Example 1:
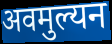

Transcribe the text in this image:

अवमुल्यन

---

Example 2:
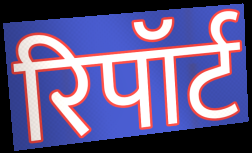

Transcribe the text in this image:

रिपॉर्ट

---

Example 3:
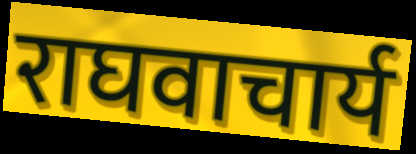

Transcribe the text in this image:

राघवाचार्य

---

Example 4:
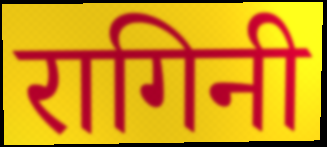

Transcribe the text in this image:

रागिनी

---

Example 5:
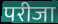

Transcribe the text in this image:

परीजा